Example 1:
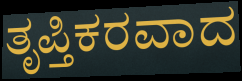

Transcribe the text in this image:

ತೃಪ್ತಿಕರವಾದ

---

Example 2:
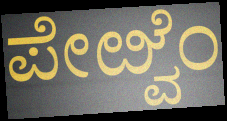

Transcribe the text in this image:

ಪೇೞ್ವೆಂ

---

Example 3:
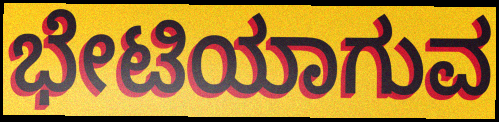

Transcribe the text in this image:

ಭೇಟಿಯಾಗುವ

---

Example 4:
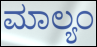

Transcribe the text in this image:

ಮಾಲ್ಯಂ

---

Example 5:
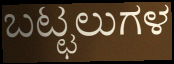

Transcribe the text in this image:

ಬಟ್ಟಲುಗಳ